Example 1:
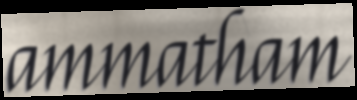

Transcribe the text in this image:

ammatham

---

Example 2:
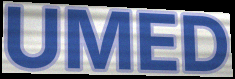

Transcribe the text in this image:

UMED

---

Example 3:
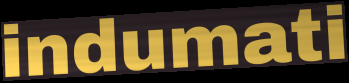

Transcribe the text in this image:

indumati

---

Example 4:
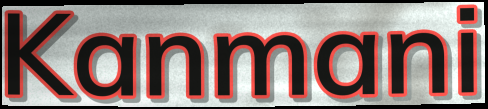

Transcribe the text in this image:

Kanmani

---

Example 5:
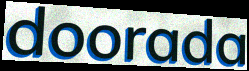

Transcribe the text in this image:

doorada